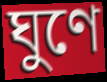
ঘুণে